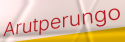
Arutperungo